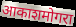
आकाशमोगरा